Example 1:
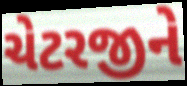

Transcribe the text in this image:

ચેટરજીને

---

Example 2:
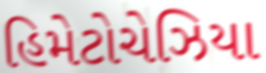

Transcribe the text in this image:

હિમેટોચેઝિયા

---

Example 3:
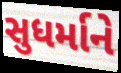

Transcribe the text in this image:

સુધર્માને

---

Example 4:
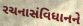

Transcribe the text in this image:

રચનાસંવિધાનને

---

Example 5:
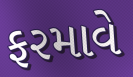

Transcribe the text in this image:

ફરમાવે